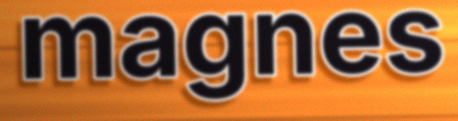
magnes